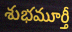
శుభమూర్తీ